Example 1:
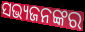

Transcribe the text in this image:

ସଭ୍ୟଜନଙ୍କର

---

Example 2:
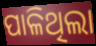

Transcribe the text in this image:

ପାଳିଥିଲା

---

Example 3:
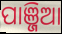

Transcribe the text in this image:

ପାଞ୍ଜିଆ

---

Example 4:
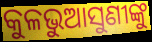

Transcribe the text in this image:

କୁଳଭୁଆସୁଣୀଙ୍କୁ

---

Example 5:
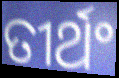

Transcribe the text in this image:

ତୀର୍ଥଂ